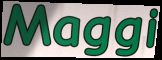
Maggi